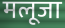
मलूजा